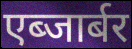
एब्जार्बर